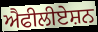
ਐਫੀਲੀਏਸ਼ਨ